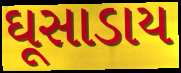
ઘૂસાડાય